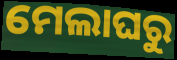
ମେଲାଘରୁ